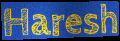
Haresh